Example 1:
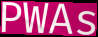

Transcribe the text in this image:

PWAs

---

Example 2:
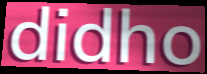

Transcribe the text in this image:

didho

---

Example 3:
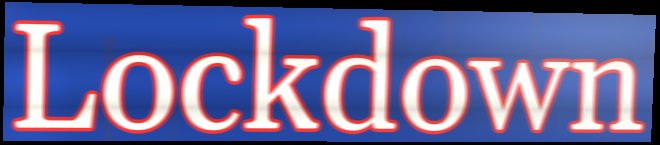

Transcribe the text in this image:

Lockdown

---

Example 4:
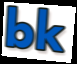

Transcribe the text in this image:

bk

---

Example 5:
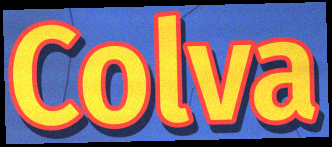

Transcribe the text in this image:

Colva